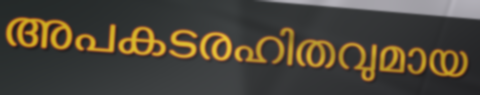
അപകടരഹിതവുമായ